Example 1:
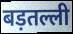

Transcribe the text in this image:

बड़तल्ली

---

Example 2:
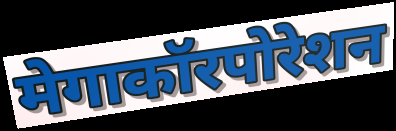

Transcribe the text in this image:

मेगाकॉरपोरेशन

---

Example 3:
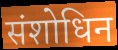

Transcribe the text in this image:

संशोधिन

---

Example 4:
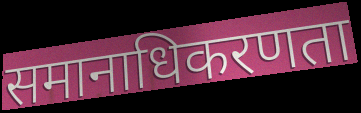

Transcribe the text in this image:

समानाधिकरणता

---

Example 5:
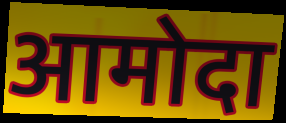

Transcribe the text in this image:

आमोदा